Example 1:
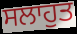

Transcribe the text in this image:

ਸਲਾਹੁਤ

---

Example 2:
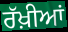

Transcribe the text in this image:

ਰੱਖ਼ੀਆਂ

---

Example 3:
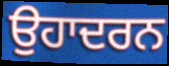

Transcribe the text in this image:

ਉਹਾਦਰਨ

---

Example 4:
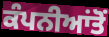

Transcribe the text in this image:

ਕੰਪਨੀਆਂਤੋਂ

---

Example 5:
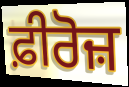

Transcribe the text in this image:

ਫ਼ੀਰੋਜ਼